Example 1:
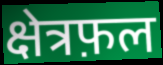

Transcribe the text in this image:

क्षेत्रफ़ल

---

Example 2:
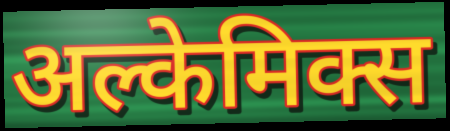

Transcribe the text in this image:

अल्केमिक्स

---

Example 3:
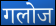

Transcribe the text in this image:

गलोज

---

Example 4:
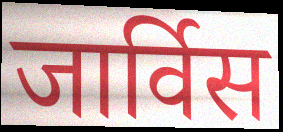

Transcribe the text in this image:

जार्विस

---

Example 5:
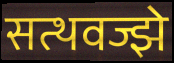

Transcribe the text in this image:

सत्थवज्झे